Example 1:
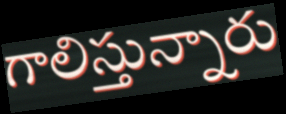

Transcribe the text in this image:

గాలిస్తున్నారు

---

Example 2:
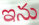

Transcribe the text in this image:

ఇను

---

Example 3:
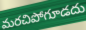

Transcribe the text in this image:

మరచిపోగూడదు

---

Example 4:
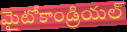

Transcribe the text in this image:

మైటోకాండ్రియల్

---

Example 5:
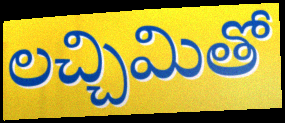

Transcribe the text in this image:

లచ్చిమితో